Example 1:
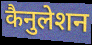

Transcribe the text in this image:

कैनुलेशन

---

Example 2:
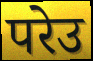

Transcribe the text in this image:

परेउ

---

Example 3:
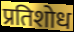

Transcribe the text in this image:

प्रतिशोध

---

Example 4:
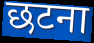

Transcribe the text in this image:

छटना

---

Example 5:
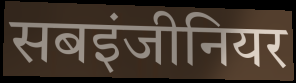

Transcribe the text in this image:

सबइंजीनियर